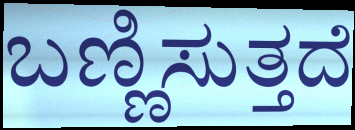
ಬಣ್ಣಿಸುತ್ತದೆ